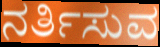
ನರ್ತಿಸುವ